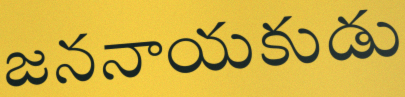
జననాయకుడు